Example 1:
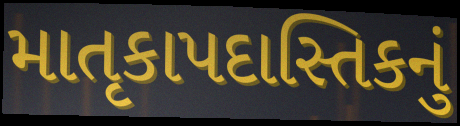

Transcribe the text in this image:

માતૃકાપદાસ્તિકનું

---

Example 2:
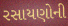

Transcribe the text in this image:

રસાયણોની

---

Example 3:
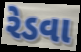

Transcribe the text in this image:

રેડવા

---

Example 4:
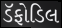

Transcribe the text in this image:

ડૅફોડિલ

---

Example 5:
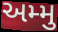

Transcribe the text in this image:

અમ્મુ